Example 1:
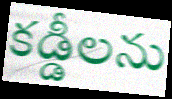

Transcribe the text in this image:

కడ్డీలను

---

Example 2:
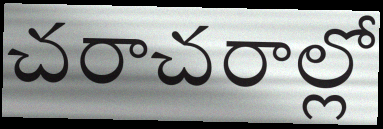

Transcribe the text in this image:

చరాచరాల్లో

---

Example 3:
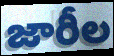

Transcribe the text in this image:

జారీల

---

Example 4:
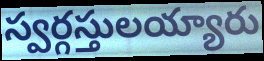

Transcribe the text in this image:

స్వర్గస్తులయ్యారు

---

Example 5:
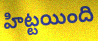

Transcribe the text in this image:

హిట్టయింది